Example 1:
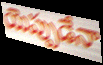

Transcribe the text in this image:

యెప్పుడేనా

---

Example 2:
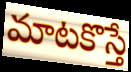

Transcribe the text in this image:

మాటకొస్తే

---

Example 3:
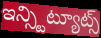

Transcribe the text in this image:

ఇన్స్టిట్యూట్స్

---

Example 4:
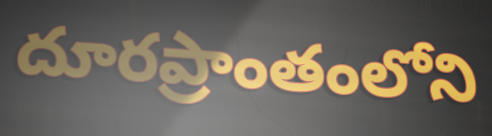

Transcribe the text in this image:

దూరప్రాంతంలోని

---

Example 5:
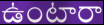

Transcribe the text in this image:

ఉంటారా